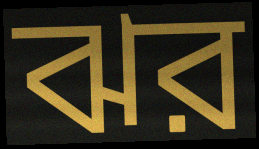
ঝর